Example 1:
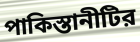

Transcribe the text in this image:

পাকিস্তানীটির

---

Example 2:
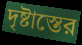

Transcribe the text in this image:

দৃষ্টাস্তের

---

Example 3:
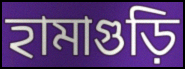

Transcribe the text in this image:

হামাগুড়ি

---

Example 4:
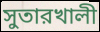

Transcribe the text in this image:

সুতারখালী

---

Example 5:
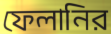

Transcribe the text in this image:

ফেলানির